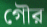
গৌর